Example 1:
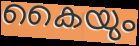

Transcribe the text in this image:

കൈയും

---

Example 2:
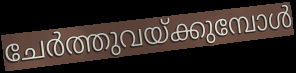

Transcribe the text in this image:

ചേർത്തുവയ്ക്കുമ്പോൾ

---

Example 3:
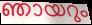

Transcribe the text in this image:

ഞായറും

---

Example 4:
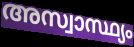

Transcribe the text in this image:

അസ്വാസ്ഥ്യം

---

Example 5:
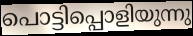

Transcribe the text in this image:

പൊട്ടിപ്പൊളിയുന്നു